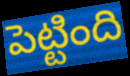
పెట్టింది